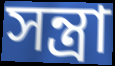
সন্ত্রা